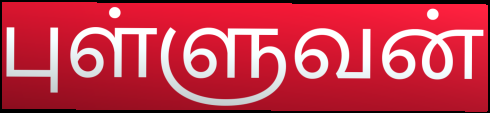
புள்ளுவன்